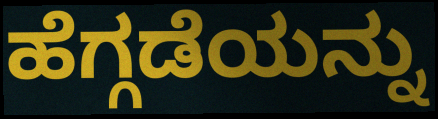
ಹೆಗ್ಗಡೆಯನ್ನು